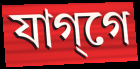
যাগ্‌গে